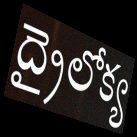
ద్రైలోక్య